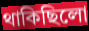
থাকিছিলো